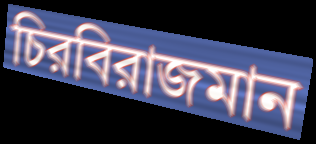
চিরবিরাজমান